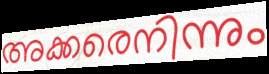
അക്കരെനിന്നും